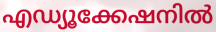
എഡ്യൂക്കേഷനിൽ